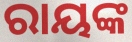
ରାୟଙ୍କ